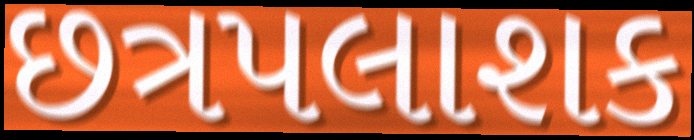
છત્રપલાશક